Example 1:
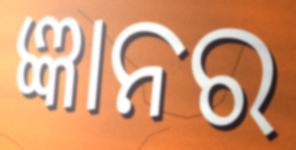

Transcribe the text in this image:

ଜ୍ଞାନର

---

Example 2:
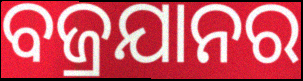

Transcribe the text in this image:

ବଜ୍ରଯାନର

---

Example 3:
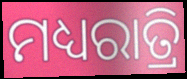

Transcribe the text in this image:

ମଧ୍ୟରାତ୍ରି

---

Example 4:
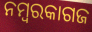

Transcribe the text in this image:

ନମ୍ବରକାଗଜ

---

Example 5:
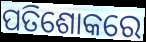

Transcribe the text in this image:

ପତିଶୋକରେ